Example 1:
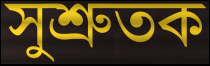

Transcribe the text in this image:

সুশ্ৰুতক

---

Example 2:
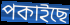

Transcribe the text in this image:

পকাইছে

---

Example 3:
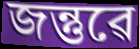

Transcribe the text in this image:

জন্তুৱে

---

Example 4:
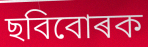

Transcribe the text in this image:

ছবিবোৰক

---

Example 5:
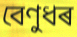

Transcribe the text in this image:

বেণুধৰ